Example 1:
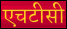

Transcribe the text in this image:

एचटीसी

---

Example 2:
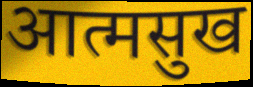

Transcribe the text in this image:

आत्मसुख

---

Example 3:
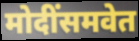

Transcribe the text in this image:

मोदींसमवेत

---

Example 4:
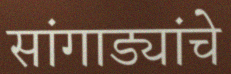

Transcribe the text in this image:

सांगाड्यांचे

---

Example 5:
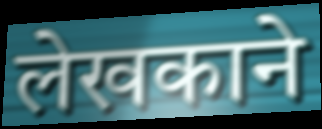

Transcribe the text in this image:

लेखकाने